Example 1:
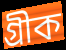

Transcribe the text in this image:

গ্রীক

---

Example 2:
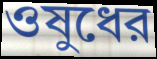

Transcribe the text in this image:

ওষুধের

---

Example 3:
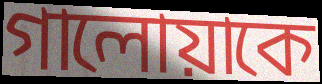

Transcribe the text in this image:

গালোয়াকে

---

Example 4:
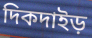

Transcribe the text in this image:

দিকদাইড়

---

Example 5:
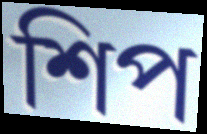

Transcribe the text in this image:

শিপ